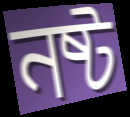
নষ্ট